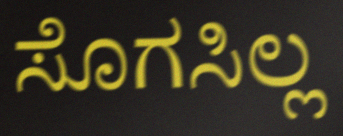
ಸೊಗಸಿಲ್ಲ